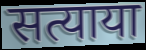
सत्याया